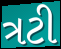
ત્રટી